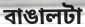
বাঙালটা